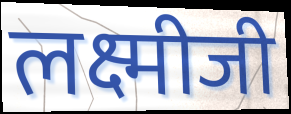
लक्ष्मीजी